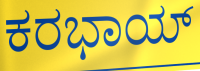
ಕರಭಾಯ್